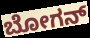
ಬೋಗನ್